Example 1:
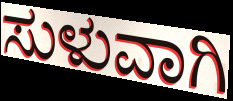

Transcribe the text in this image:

ಸುಳುವಾಗಿ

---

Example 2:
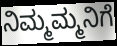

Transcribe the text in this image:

ನಿಮ್ಮಮ್ಮನಿಗೆ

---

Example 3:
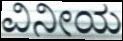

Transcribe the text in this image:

ವಿನೀಯ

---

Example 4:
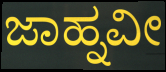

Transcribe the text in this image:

ಜಾಹ್ನವೀ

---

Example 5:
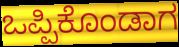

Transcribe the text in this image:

ಒಪ್ಪಿಕೊಂಡಾಗ